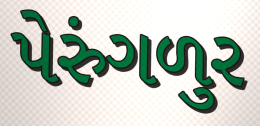
પેરુંગળુર